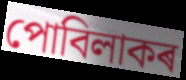
পোবিলাকৰ